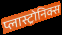
प्लास्ट्रोनिक्स